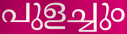
പുളച്ചും